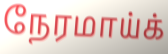
நேரமாய்க்